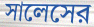
সালেসের